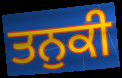
ਤਨੁਕੀ